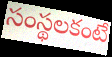
సంస్థలకంటే